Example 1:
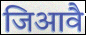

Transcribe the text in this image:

जिआवै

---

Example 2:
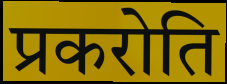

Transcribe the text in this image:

प्रकरोति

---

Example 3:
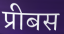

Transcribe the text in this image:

प्रीबस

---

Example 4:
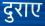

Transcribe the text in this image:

दुराए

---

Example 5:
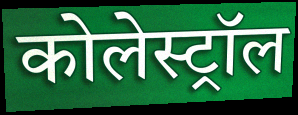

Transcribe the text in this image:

कोलेस्‍ट्रॉल